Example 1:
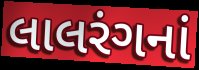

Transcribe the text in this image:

લાલરંગનાં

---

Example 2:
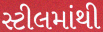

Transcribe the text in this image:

સ્ટીલમાંથી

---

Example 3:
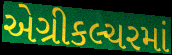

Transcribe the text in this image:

એગ્રીકલ્ચરમાં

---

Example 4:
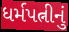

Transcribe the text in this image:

ધર્મપત્નીનું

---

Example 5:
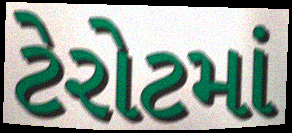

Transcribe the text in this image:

ટેરોટમાં